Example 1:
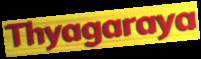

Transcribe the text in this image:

Thyagaraya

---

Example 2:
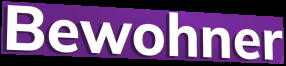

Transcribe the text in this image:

Bewohner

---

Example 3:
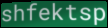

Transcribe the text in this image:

shfektsp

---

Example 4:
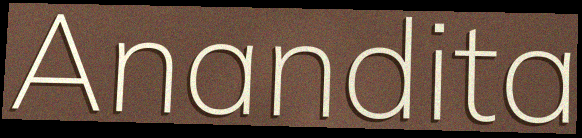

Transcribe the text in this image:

Anandita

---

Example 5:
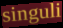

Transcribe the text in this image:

singuli